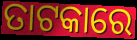
ତାଟକାରେ